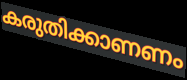
കരുതിക്കാണണം